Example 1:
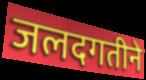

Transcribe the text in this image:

जलदगतीने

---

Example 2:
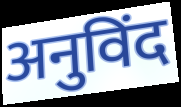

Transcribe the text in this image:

अनुविंद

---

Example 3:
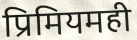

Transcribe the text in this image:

प्रिमियमही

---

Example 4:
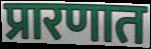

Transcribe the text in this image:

प्रारणात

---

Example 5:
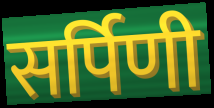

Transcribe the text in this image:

सर्पिणी